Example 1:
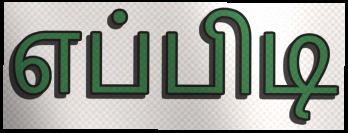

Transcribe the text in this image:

எப்பிடி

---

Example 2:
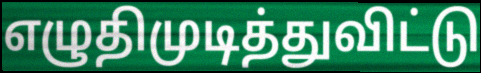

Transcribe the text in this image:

எழுதிமுடித்துவிட்டு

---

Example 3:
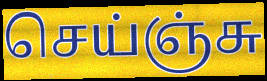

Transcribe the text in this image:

செய்ஞ்சு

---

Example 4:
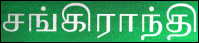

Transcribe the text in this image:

சங்கிராந்தி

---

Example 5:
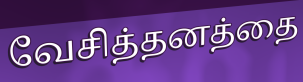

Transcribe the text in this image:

வேசித்தனத்தை